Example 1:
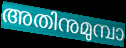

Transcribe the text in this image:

അതിനുമുമ്പാ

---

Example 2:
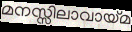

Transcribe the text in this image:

മനസ്സിലാവായ്മ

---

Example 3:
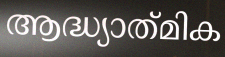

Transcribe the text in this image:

ആദ്ധ്യാത്‌മിക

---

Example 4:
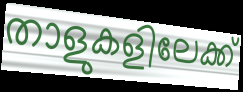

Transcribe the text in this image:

താളുകളിലേക്ക്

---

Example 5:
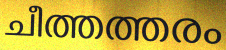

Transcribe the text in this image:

ചീത്തത്തരം